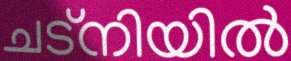
ചട്നിയിൽ